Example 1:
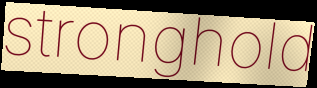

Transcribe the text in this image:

stronghold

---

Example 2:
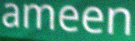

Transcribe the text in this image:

ameen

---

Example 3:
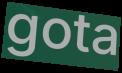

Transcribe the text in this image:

gota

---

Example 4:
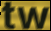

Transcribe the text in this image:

tw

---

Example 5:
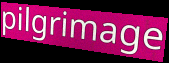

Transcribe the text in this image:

pilgrimage